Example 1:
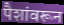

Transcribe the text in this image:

पैशांवरून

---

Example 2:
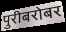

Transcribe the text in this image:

पुरीबरोबर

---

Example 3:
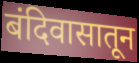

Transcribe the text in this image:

बंदिवासातून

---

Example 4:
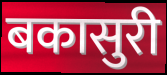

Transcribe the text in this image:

बकासुरी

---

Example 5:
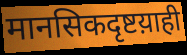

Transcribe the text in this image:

मानसिकदृष्टय़ाही